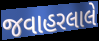
જવાહરલાલે